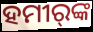
ହମୀର୍‍ଙ୍କ